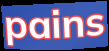
pains